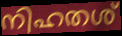
നിഹതശ്